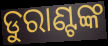
ଡୁରାଣ୍ଟଙ୍କ